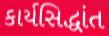
કાર્યસિદ્ધાંત